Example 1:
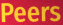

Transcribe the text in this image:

Peers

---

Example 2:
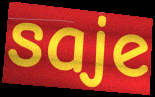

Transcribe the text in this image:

saje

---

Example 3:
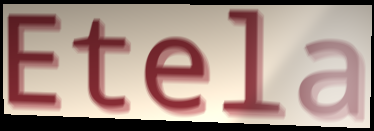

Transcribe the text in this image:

Etela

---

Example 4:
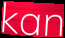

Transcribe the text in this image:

kan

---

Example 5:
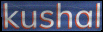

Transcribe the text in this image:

kushal